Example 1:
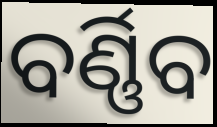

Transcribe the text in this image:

ବର୍ଣ୍ଣିବ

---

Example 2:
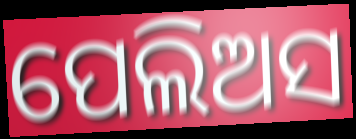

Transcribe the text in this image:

ପେଲିଅସ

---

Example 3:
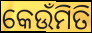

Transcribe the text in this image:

କେଉଁମିତି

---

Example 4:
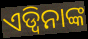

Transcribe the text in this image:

ଏଡ୍ୱିନାଙ୍କ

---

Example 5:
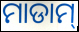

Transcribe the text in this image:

ମାଡାମ୍